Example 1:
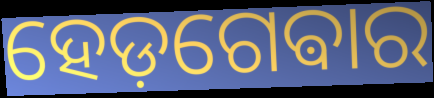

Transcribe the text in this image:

ହେଡ଼ଗେଵାର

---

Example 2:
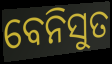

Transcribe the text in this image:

ବେନିସୁତ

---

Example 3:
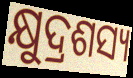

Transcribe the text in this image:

କ୍ଷୁଦ୍ରଶସ୍ୟ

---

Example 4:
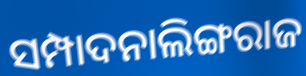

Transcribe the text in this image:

ସମ୍ପାଦନାଲିଙ୍ଗରାଜ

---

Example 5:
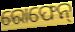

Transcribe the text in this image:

ରୋଫେନ୍